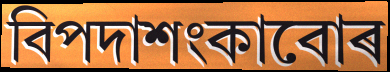
বিপদাশংকাবোৰ